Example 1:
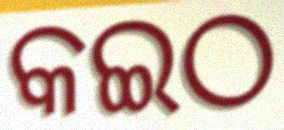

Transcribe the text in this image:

କଇଠ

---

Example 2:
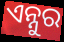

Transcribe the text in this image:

ଏନ୍ନୁର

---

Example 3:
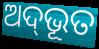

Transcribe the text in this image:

ଅଦ୍‌ଭୂତ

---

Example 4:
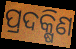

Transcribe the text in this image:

ପ୍ରଦକ୍ଷିଣ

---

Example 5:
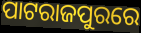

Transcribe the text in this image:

ପାଟରାଜପୁରରେ